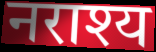
नराश्य